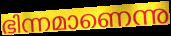
ഭിന്നമാണെന്നു